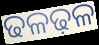
ଢଳଢ଼ଳ